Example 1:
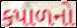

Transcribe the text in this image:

કપાળનો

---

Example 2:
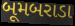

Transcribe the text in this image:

બૂમબરાડા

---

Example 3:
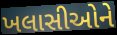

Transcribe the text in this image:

ખલાસીઓને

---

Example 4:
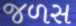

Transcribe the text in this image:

જળસ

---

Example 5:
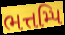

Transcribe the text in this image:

ભત્તમ્પિ